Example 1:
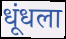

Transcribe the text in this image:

धूंधला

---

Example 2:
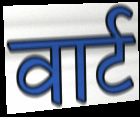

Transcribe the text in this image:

वार्ट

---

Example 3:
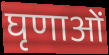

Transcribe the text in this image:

घृणाओं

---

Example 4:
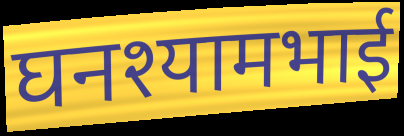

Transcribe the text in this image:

घनश्यामभाई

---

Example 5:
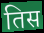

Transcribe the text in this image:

तिस